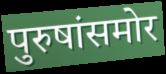
पुरुषांसमोर